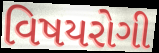
વિષયરોગી